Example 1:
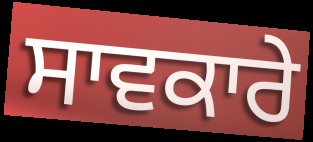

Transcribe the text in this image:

ਸਾਵਕਾਰੇ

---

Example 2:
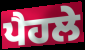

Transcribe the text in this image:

ਪੈਹਲੇ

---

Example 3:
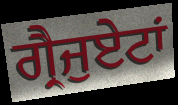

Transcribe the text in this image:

ਗ੍ਰੈਜੁਏਟਾਂ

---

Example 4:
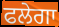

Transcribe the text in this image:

ਫਲੇਗਾ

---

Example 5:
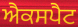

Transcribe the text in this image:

ਐਕਸਪੈਟ